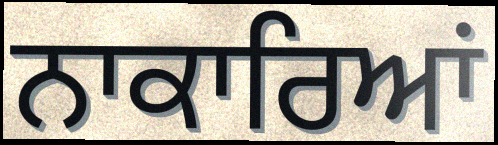
ਨਾਕਾਰਿਆਂ